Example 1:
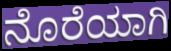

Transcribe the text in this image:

ನೊರೆಯಾಗಿ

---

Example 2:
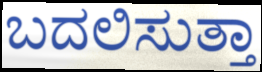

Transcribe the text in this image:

ಬದಲಿಸುತ್ತಾ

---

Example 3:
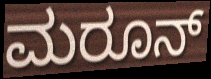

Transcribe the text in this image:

ಮರೂನ್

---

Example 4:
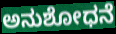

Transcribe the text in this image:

ಅನುಶೋಧನೆ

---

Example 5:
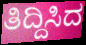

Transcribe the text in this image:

ತಿದ್ದಿಸಿದ